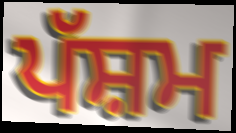
ਪੱਸ਼ਮ